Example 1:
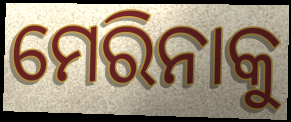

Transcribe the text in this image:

ମେରିନାକୁ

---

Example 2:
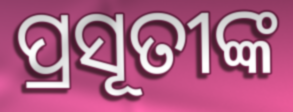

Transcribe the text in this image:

ପ୍ରସୂତୀଙ୍କ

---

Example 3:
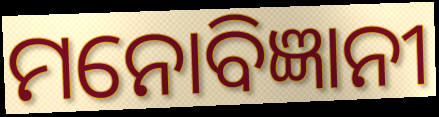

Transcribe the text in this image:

ମନୋବିଜ୍ଞାନୀ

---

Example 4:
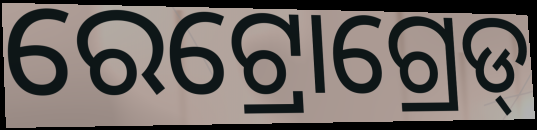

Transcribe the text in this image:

ରେଟ୍ରୋଗ୍ରେଡ୍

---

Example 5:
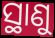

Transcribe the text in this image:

ସ୍ଥାଣୁ